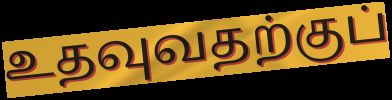
உதவுவதற்குப்